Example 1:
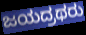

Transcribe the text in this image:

ಜಯದ್ರಥರು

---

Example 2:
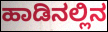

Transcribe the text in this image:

ಹಾಡಿನಲ್ಲಿನ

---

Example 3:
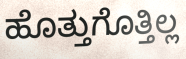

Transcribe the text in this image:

ಹೊತ್ತುಗೊತ್ತಿಲ್ಲ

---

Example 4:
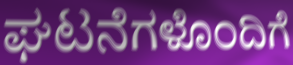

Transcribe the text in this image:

ಘಟನೆಗಳೊಂದಿಗೆ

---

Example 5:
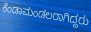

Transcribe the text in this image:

ಕೆಂಡಾಮಂಡಲರಾಗಿದ್ದರು